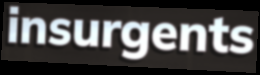
insurgents